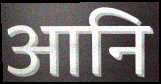
आनि